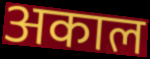
अकाल